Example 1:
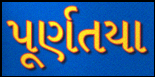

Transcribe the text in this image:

પૂર્ણતયા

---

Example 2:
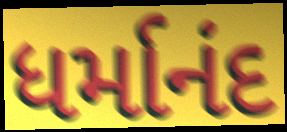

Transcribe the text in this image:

ધર્માનંદ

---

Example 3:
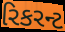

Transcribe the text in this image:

રિકરન્ટ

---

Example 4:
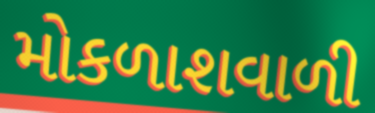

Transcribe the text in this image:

મોકળાશવાળી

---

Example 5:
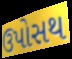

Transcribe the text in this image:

ઉપોસથ